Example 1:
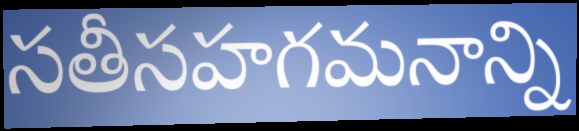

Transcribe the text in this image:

సతీసహగమనాన్ని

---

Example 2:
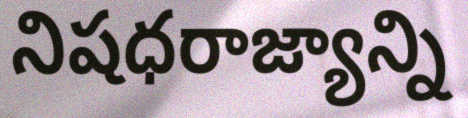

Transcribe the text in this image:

నిషధరాజ్యాన్ని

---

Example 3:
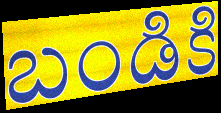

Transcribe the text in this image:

బండికి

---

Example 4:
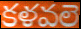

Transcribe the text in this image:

కళవలె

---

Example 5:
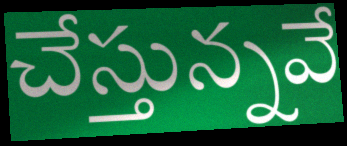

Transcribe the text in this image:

చేస్తున్నవే